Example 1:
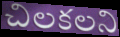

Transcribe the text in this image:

చిలకలని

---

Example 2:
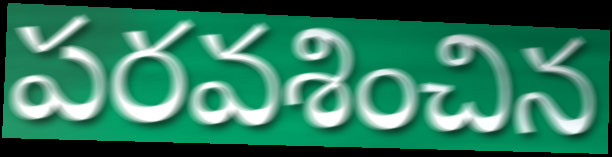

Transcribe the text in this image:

పరవశించిన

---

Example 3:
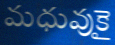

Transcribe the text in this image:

మధువుకై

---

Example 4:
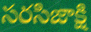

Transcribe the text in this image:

సరసిజాక్షి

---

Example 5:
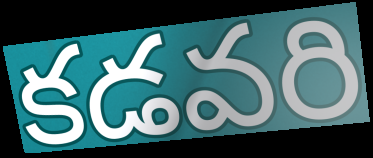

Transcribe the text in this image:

కడవరి